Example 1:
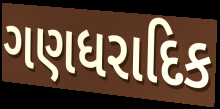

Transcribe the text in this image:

ગણધરાદિક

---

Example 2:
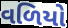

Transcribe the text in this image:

વળિયો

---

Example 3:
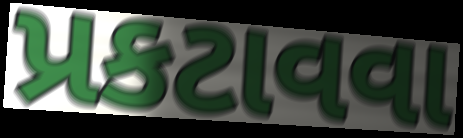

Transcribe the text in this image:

પ્રકટાવવા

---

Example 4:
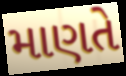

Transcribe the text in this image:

માણતે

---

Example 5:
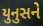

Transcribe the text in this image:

યુનુસને